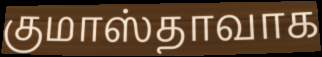
குமாஸ்தாவாக